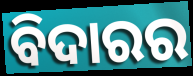
ବିଦାରର